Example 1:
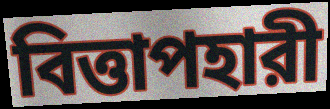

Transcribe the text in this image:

বিত্তাপহারী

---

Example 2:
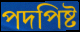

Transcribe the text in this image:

পদপিষ্ট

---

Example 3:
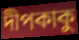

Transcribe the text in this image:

দীপকাকু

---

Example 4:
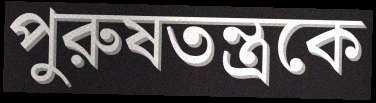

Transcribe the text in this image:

পুরুষতন্ত্রকে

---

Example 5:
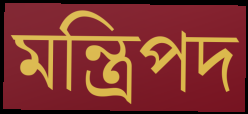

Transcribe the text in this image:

মন্ত্রিপদ